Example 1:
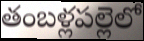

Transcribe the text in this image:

తంబళ్లపల్లెలో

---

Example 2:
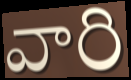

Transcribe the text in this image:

వారి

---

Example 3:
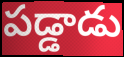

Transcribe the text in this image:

పడ్డాడు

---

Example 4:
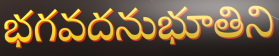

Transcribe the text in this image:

భగవదనుభూతిని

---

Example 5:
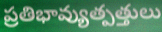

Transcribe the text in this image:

ప్రతిభావ్యుత్పత్తులు